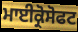
ਮਾਈਕ੍ਰੋਸੋਫਟ